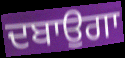
ਦਬਾਉਗਾ